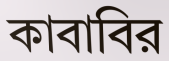
কাবাবির